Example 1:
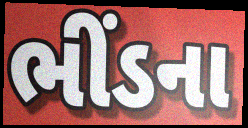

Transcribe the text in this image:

ભીંડના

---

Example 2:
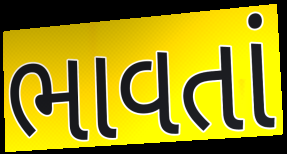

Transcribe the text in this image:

ભાવતાં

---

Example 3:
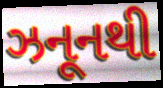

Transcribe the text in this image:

ઝનૂનથી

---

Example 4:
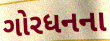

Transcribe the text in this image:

ગોરધનના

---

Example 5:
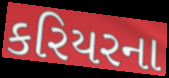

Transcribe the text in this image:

કરિયરના